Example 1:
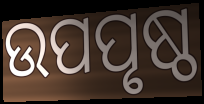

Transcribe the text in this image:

ଉପପୃଷ୍ଠ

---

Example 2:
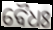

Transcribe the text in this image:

ବୈଧଃ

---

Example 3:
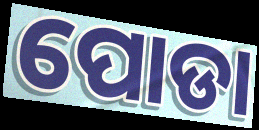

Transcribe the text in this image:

ପୋଡା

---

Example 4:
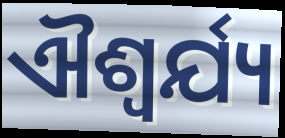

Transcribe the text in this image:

ଐଶ୍ଵର୍ଯ୍ୟ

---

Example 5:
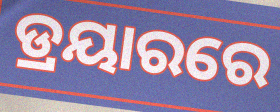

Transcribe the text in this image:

ଡ୍ରୟାରରେ